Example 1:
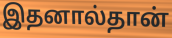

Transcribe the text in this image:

இதனால்தான்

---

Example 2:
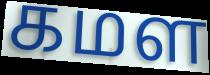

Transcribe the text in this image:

கமள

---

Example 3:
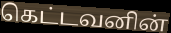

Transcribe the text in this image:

கெட்டவனின்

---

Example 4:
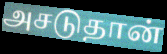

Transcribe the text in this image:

அசடுதான்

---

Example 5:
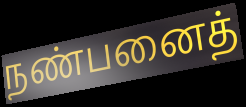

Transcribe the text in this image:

நண்பனைத்